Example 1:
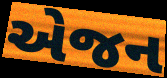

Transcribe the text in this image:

એજન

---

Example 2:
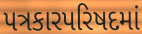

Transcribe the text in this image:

પત્રકારપરિષદમાં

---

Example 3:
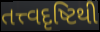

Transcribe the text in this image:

તત્ત્વદૃષ્ટિથી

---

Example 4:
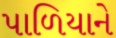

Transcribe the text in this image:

પાળિયાને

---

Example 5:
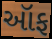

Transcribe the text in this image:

ઑફ